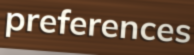
preferences